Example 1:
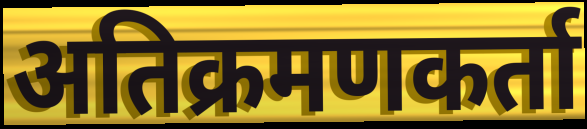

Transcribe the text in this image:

अतिक्रमणकर्ता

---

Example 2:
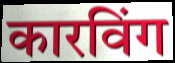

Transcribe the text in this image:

कारविंग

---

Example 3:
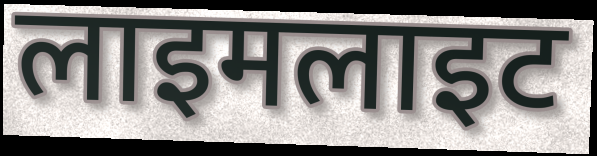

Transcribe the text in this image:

लाइमलाइट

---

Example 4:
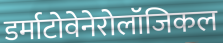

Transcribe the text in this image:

डर्माटोवेनेरोलॉजिकल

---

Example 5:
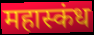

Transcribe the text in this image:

महास्कंध